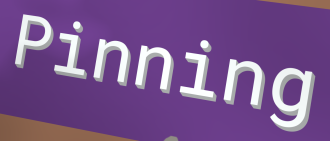
Pinning